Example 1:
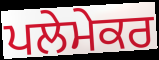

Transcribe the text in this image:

ਪਲੇਮੇਕਰ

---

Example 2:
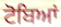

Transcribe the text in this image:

ਟੋਬਿਆਂ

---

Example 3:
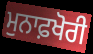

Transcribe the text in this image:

ਮੁਨਾਫ਼ਖੋਰੀ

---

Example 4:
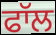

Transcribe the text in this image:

ਫਾੱਲ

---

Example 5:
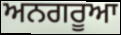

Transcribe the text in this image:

ਅਨਗਰੂਆ